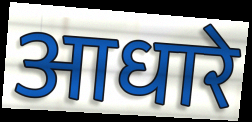
आधारे